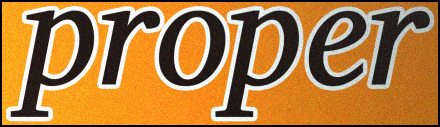
proper